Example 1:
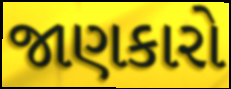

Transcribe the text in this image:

જાણકારો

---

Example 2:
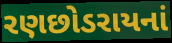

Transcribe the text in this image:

રણછોડરાયનાં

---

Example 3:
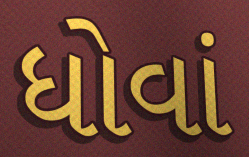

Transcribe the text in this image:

ધોવાં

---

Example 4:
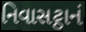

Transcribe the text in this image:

નિવાસટ્ઠાનં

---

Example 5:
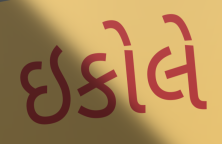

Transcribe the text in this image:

ઇકોલે